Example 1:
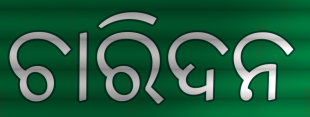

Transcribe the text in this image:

ଚାରିଦନ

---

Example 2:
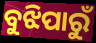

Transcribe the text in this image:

ବୁଝିପାରୁଁ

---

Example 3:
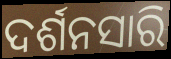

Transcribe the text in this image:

ଦର୍ଶନସାରି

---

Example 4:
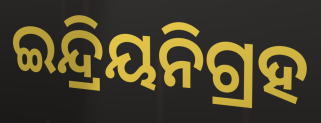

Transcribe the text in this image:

ଇନ୍ଦ୍ରିୟନିଗ୍ରହ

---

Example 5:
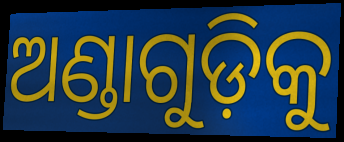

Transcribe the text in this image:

ଅଣ୍ଡାଗୁଡ଼ିକୁ